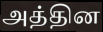
அத்தின